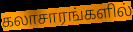
கலாசாரங்களில்